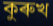
কুৰুখ